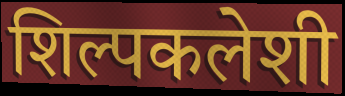
शिल्पकलेशी